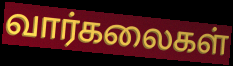
வார்கலைகள்